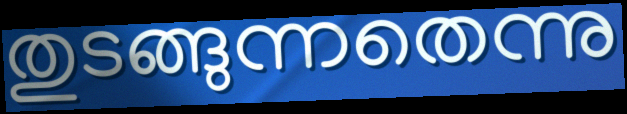
തുടങ്ങുന്നതെന്നു